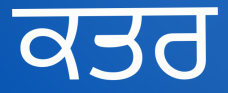
ਕਤਰ